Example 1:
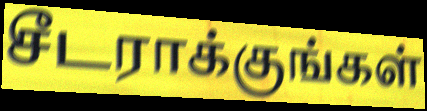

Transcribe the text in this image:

சீடராக்குங்கள்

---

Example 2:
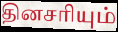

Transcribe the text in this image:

தினசரியும்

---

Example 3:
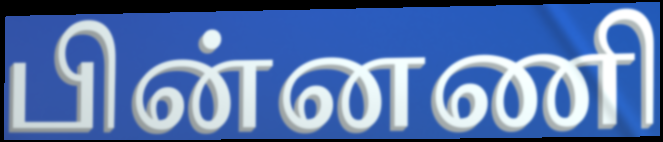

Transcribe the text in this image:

பின்னணி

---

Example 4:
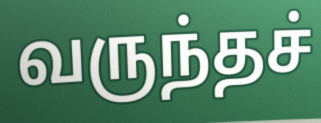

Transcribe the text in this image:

வருந்தச்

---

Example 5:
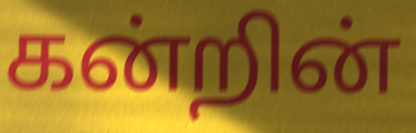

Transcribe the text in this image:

கன்றின்